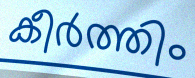
കീർത്തിം